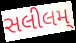
સલીલમ્